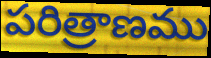
పరిత్రాణము